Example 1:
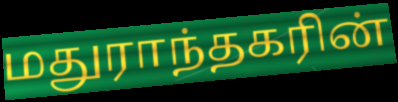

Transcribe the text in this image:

மதுராந்தகரின்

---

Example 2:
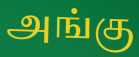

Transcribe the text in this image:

அங்கு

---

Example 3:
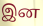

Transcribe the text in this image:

இன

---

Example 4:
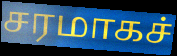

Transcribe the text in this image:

சரமாகச்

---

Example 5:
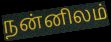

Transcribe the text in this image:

நன்னிலம்